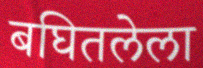
बघितलेला